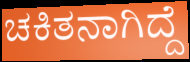
ಚಕಿತನಾಗಿದ್ದೆ